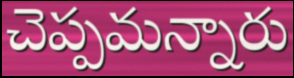
చెప్పమన్నారు